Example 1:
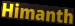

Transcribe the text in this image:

Himanth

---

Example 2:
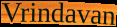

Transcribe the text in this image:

Vrindavan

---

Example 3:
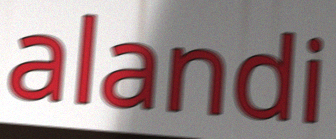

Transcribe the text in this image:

alandi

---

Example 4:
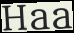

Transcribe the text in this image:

Haa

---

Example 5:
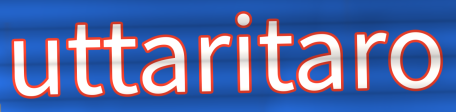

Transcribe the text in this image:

uttaritaro